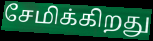
சேமிக்கிறது